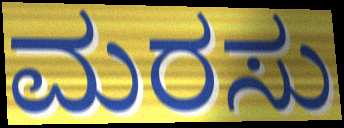
ಮರಸು